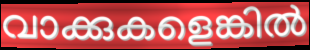
വാക്കുകളെങ്കിൽ